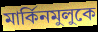
মার্কিনমুলুকে